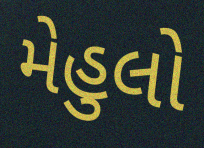
મેહુલો